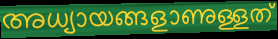
അധ്യായങ്ങളാണുള്ളത്